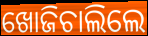
ଖୋଜିଚାଲିଲେ